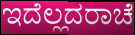
ಇದೆಲ್ಲದರಾಚೆ